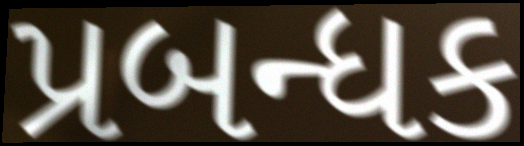
પ્રબન્ધક